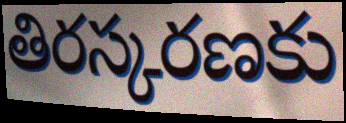
తిరస్కరణకు